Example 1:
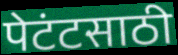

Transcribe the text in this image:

पेटंटसाठी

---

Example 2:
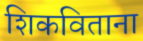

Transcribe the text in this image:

शिकविताना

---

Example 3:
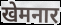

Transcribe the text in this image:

खेमनार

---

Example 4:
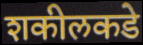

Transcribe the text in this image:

शकीलकडे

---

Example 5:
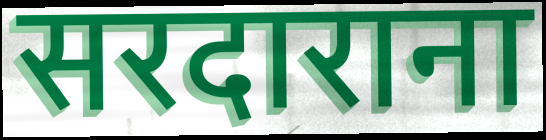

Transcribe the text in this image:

सरदाराना